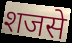
शजसे